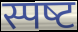
स्‍पष्‍ट